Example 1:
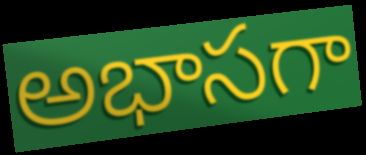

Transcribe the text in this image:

అభాసగా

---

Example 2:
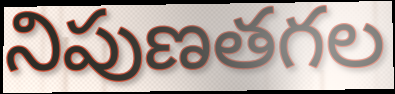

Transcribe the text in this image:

నిపుణతగల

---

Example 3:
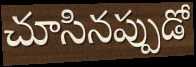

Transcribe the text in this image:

చూసినప్పుడో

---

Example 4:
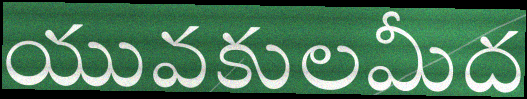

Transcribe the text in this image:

యువకులమీద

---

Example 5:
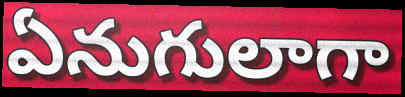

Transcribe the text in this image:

ఏనుగులాగా